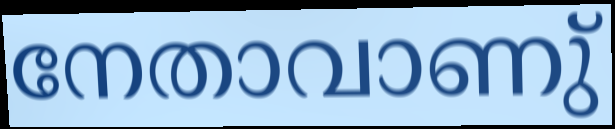
നേതാവാണു്